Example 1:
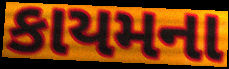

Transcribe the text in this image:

કાયમના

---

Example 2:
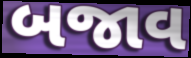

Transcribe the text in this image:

બજાવ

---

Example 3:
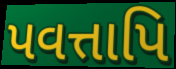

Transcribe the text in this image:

પવત્તાપિ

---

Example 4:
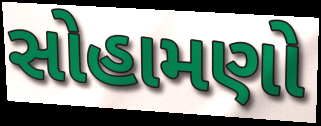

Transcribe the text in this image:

સોહામણો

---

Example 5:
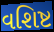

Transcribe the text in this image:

વશિષ્ટ